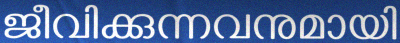
ജീവിക്കുന്നവനുമായി